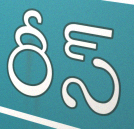
రీస్